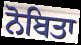
ਨੋਬਿਤਾ